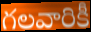
గలవారికీ